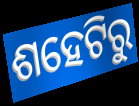
ଶହେଟିରୁ